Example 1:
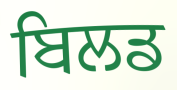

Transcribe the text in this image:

ਬਿਲਡ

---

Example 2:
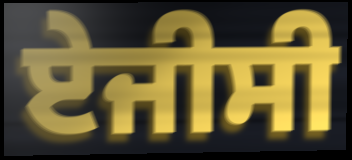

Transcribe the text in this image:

ਏਜੀਸੀ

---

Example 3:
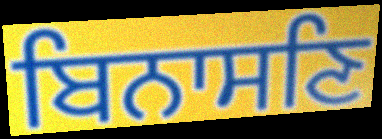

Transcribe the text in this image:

ਬਿਨਾਸਣਿ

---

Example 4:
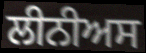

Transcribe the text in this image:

ਲੀਨੀਅਸ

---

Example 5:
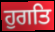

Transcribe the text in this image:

ਹੁਗਤਿ